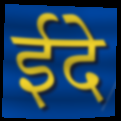
ईदे